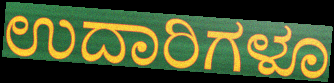
ಉದಾರಿಗಳೂ